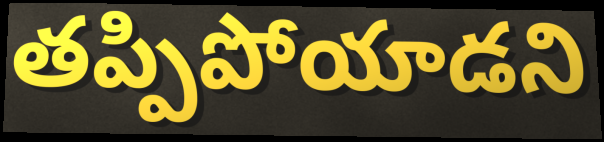
తప్పిపోయాడని